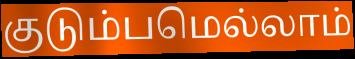
குடும்பமெல்லாம்